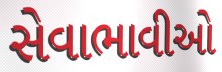
સેવાભાવીઓ